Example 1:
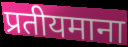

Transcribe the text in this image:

प्रतीयमाना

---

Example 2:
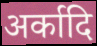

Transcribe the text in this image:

अर्कादि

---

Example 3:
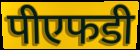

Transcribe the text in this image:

पीएफडी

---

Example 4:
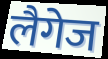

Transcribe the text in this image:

लैगेज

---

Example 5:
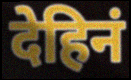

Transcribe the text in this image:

देहिनं